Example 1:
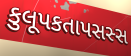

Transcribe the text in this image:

કુલૂપકતાપસસ્સ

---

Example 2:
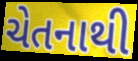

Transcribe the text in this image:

ચેતનાથી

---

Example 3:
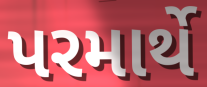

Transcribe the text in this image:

પરમાર્થે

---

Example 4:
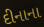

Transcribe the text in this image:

દીનાના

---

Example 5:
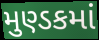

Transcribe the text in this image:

મુણ્ડકમાં